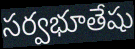
సర్వభూతేషు